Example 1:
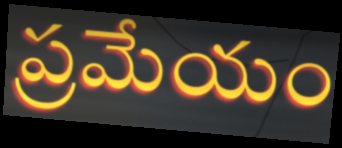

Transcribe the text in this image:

ప్రమేయం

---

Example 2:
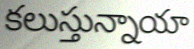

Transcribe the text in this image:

కలుస్తున్నాయా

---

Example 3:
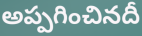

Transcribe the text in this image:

అప్పగించినదీ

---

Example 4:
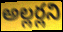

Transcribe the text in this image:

అల్లర్లని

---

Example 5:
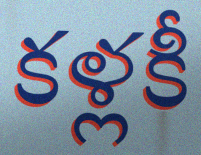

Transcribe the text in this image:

కళ్లకీ